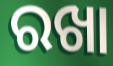
ରଖା